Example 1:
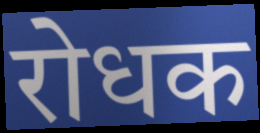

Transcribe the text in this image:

रोधक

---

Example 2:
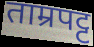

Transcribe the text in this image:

ताम्रपट्ट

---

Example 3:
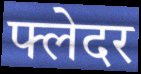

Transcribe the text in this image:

फ्लेदर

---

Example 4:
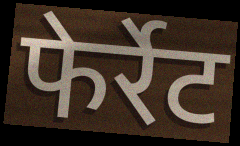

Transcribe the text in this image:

फेर्रेट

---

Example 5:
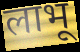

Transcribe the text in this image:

लाभू